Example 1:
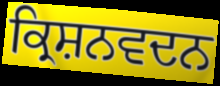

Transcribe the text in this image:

ਕ੍ਰਿਸ਼ਨਵਦਨ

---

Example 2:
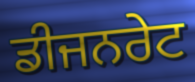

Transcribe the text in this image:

ਡੀਜਨਰੇਟ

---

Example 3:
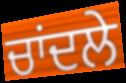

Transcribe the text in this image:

ਚਾਂਦਲੇ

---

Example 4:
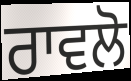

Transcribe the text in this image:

ਰਾਵਲੋ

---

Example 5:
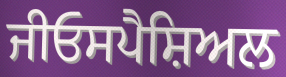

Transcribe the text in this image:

ਜੀਓਸਪੈਸ਼ਿਅਲ